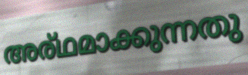
അര്ഥമാക്കുന്നതു